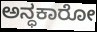
ಅನ್ಧಕಾರೋ